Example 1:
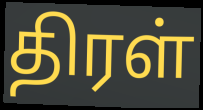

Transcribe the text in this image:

திரள்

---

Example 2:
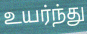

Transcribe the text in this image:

உயர்ந்து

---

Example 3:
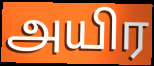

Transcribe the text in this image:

அயிர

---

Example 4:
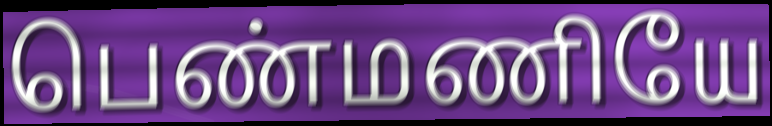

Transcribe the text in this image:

பெண்மணியே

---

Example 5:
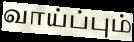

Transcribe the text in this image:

வாய்ப்பும்